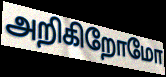
அறிகிறோமோ